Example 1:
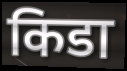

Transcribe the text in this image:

किडा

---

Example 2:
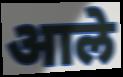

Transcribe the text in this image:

आले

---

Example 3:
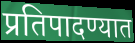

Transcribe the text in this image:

प्रतिपादण्यात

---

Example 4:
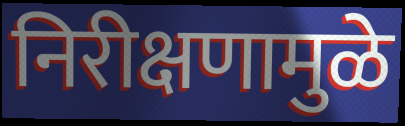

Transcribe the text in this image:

निरीक्षणामुळे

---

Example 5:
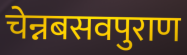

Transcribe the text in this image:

चेन्नबसवपुराण